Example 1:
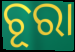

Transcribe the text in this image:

ଚୂରା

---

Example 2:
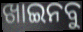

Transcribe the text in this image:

ଖାଇନବୁ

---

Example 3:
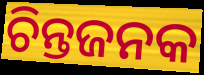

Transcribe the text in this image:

ଚିନ୍ତଜନକ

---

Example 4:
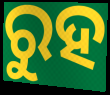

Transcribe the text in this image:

ରୁହ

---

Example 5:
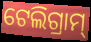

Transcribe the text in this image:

ଟେଲିଗ୍ରାମ୍